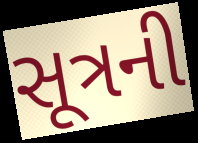
સૂત્રની